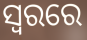
ସ୍ବରରେ